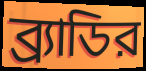
ব্র্যাডির